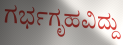
ಗರ್ಭಗೃಹವಿದ್ದು